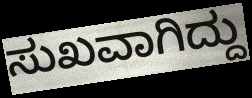
ಸುಖವಾಗಿದ್ದು